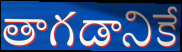
తాగడానికే